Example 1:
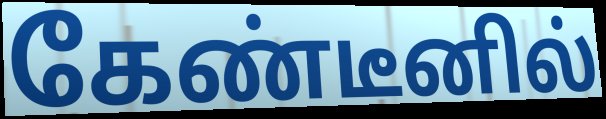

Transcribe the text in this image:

கேண்டீனில்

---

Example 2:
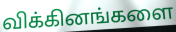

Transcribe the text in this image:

விக்கினங்களை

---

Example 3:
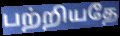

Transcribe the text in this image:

பற்றியதே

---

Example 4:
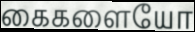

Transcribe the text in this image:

கைகளையோ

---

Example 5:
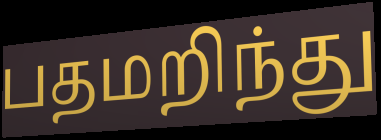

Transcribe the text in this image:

பதமறிந்து